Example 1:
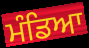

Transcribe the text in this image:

ਮੰਡਿਆ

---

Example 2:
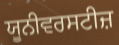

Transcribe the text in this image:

ਯੂਨੀਵਰਸਟੀਜ਼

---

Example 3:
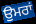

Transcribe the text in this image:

ਉੁਮਰਾਂ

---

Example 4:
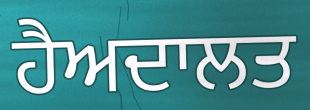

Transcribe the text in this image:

ਹੈਅਦਾਲਤ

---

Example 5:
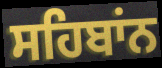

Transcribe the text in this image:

ਸਹਿਬਾਂਨ